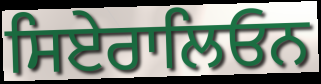
ਸਿਏਰਾਲਿਓਨ